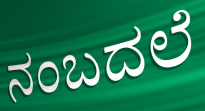
ನಂಬದಲೆ